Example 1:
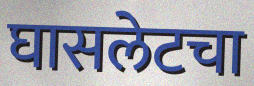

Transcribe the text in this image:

घासलेटचा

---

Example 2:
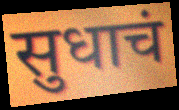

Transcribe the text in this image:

सुधाचं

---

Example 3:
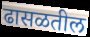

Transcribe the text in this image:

ढासळतील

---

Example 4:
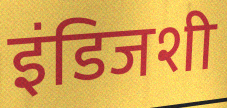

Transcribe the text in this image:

इंडिजशी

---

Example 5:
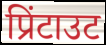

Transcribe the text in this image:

प्रिंटाउट